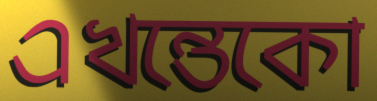
এখন্তেকো